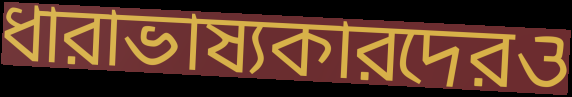
ধারাভাষ্যকারদেরও